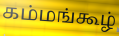
கம்மங்கூழ்